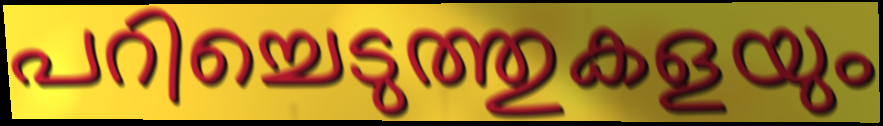
പറിച്ചെടുത്തുകളയും